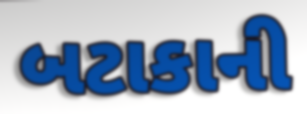
બટાકાની